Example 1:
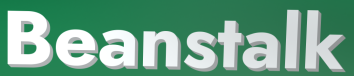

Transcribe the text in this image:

Beanstalk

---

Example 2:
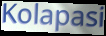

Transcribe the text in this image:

Kolapasi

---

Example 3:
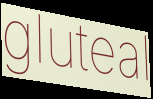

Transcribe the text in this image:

gluteal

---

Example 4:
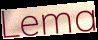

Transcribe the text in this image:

Lema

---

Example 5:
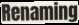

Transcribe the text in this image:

Renaming